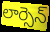
లార్సెన్